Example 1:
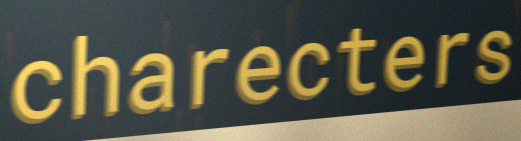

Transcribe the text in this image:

charecters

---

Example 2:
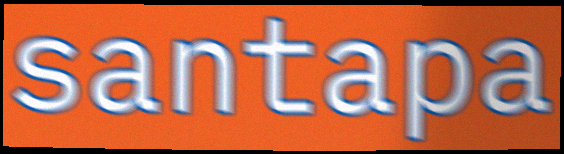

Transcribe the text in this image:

santapa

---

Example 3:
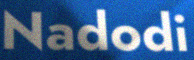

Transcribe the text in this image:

Nadodi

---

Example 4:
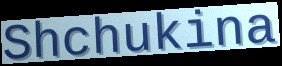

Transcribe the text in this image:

Shchukina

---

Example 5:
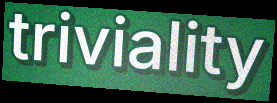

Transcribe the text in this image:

triviality